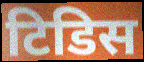
टिडिस